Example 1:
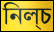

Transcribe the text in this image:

নিল্চ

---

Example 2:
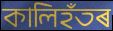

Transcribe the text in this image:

কালিহঁতৰ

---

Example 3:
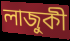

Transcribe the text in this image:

লাজুকী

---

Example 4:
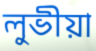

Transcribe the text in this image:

লুভীয়া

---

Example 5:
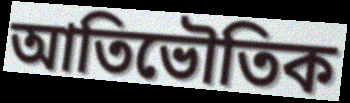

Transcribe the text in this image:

আতিভৌতিক